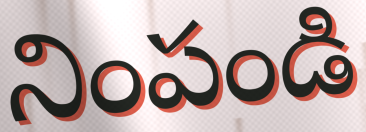
నింపండి